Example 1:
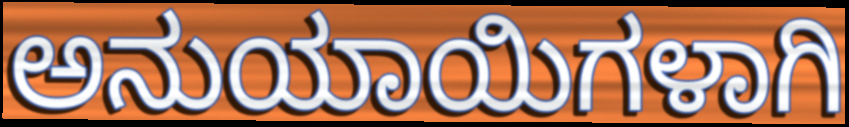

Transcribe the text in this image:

ಅನುಯಾಯಿಗಳಾಗಿ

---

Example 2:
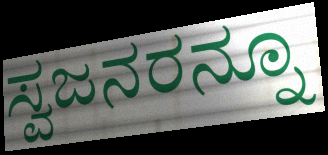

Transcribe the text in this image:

ಸ್ವಜನರನ್ನೂ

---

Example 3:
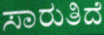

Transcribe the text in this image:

ಸಾರುತಿದೆ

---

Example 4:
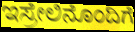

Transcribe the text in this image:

ಇಸ್ರೇಲಿನೊಂದಿಗೆ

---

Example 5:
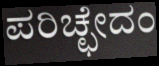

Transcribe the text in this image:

ಪರಿಚ್ಛೇದಂ